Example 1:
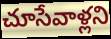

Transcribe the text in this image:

చూసేవాళ్లని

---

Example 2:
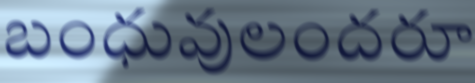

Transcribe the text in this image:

బంధువులందరూ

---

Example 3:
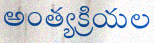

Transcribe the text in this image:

అంత్యక్రియల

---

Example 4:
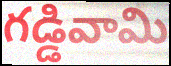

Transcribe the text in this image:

గడ్డివామి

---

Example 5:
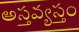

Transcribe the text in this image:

అస్తవ్యస్తం